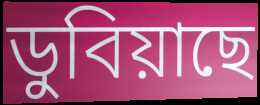
ডুবিয়াছে